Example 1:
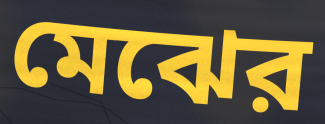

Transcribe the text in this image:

মেঝের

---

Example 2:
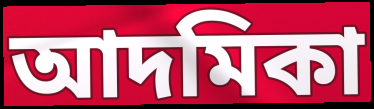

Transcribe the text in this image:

আদমিকা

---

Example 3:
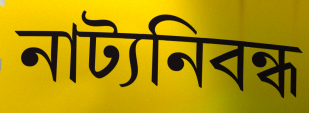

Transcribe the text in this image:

নাট্যনিবন্ধ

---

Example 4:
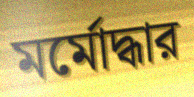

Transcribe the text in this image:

মর্মোদ্ধার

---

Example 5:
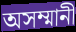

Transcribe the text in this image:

অসম্মানী